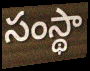
సంస్థా